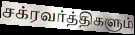
சக்ரவர்த்திகளும்